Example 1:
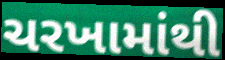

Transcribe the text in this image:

ચરખામાંથી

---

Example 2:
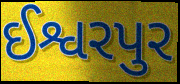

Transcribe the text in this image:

ઈશ્વરપુર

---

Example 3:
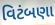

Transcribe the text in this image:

વિટંબણા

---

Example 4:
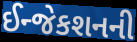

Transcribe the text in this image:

ઈન્જેકશનની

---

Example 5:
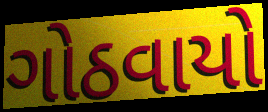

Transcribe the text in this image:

ગોઠવાયો